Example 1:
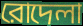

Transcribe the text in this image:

রোদেলা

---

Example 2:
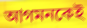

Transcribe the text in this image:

আগমনকেই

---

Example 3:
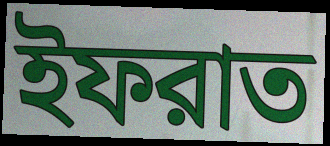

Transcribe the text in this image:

ইফরাত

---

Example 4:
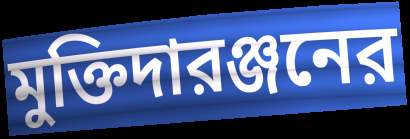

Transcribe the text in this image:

মুক্তিদারঞ্জনের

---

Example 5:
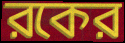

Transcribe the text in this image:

রকের